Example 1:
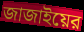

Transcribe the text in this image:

জাজাইয়ের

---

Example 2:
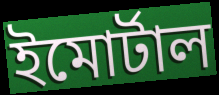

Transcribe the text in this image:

ইমোর্টাল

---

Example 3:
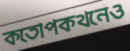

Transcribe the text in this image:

কতোপকথনেও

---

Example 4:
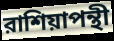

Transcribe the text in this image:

রাশিয়াপন্থী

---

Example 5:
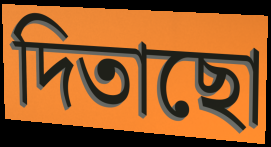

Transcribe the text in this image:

দিতাছো